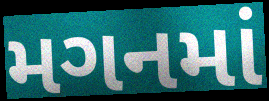
મગનમાં